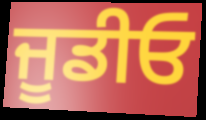
ਜੂਡੀਓ